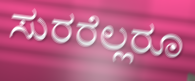
ಸುರರೆಲ್ಲರೂ